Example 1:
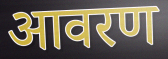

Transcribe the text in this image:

आवरण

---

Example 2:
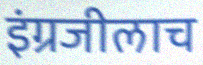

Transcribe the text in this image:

इंग्रजीलाच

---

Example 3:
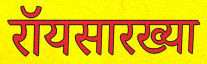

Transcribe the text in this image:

रॉयसारख्या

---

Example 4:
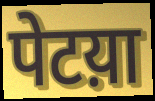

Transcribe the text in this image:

पेटय़ा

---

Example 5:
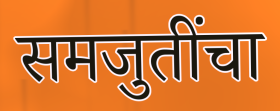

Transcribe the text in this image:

समजुतींचा